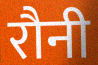
रौनी